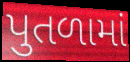
પુતળામાં